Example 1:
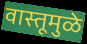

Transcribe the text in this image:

वास्तूमुळे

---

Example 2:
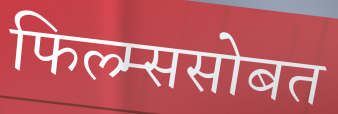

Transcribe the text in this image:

फिल्म्ससोबत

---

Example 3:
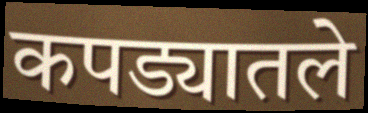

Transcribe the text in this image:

कपड्यातले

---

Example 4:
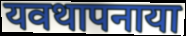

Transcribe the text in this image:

यवथापनाया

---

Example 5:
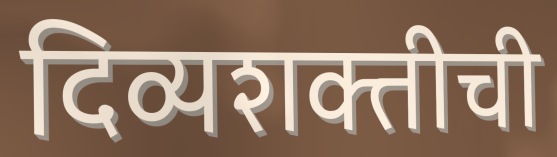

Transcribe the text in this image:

दिव्यशक्तीची